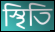
স্থিতি